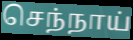
செந்நாய்